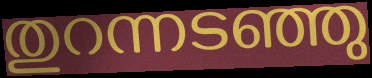
തുറന്നടഞ്ഞു